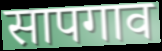
सापगाव